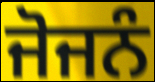
ਜੋਜਨੰ